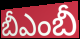
బీఎంబీ